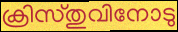
ക്രിസ്തുവിനോടു